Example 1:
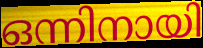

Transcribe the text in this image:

ഒന്നിനായി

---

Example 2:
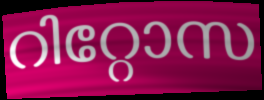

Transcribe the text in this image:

റിറ്റോസ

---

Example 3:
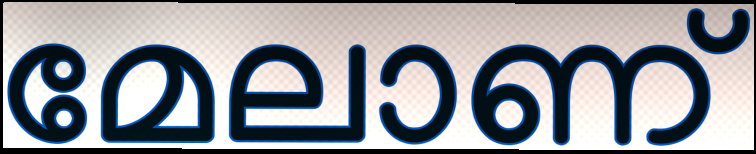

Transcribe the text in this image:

മേലാണ്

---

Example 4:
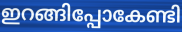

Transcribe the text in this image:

ഇറങ്ങിപ്പോകേണ്ടി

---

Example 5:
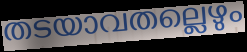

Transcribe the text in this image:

തടയാവതല്ലെഴും